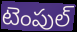
టెంపుల్